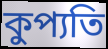
কুপ্যতি